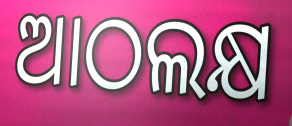
ଆଠଲକ୍ଷ